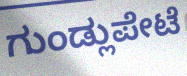
ಗುಂಡ್ಲುಪೇಟೆ